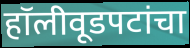
हॉलीवूडपटांचा